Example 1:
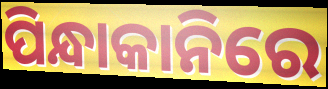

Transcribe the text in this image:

ପିନ୍ଧାକାନିରେ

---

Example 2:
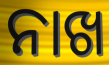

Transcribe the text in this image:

ନାଖ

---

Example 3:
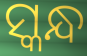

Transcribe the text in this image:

ସ୍କନ୍ଧ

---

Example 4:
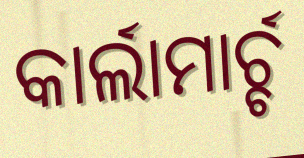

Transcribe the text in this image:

କାର୍ଲାମାର୍ଚ୍ଚ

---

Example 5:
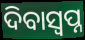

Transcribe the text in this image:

ଦିବାସ୍ଵପ୍ନ